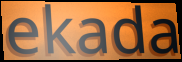
ekada